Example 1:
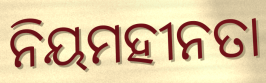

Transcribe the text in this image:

ନିୟମହୀନତା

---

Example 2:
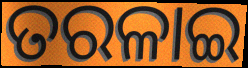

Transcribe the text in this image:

ତରଳାଇ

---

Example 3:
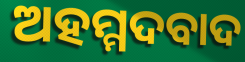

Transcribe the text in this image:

ଅହମ୍ମଦବାଦ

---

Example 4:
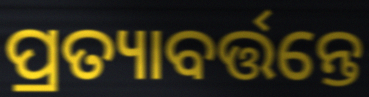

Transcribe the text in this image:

ପ୍ରତ୍ୟାବର୍ତ୍ତନ୍ତେ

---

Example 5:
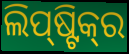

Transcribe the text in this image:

ଲିପ୍‌ଷ୍ଟିକ୍‌ର